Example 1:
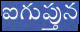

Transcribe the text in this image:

ఐగుప్తున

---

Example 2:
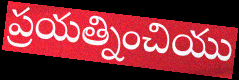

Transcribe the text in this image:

ప్రయత్నించియు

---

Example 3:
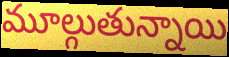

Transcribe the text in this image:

మూల్గుతున్నాయి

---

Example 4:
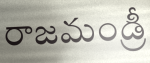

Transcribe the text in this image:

రాజమండ్రీ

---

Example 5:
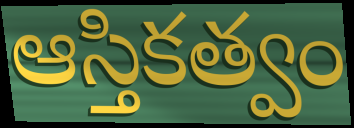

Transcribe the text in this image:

ఆస్తికత్వం